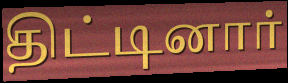
திட்டினார்